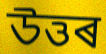
উত্তৰ